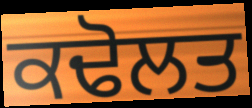
ਕਢੋਲਤ